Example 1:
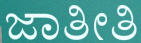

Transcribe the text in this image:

ಜಾತೀತಿ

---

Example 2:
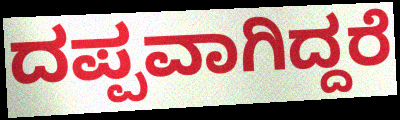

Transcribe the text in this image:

ದಪ್ಪವಾಗಿದ್ದರೆ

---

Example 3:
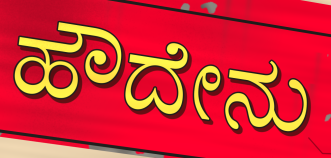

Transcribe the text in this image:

ಹೌದೇನು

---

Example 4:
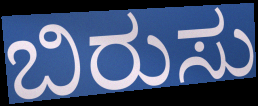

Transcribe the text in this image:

ಬಿರುಸು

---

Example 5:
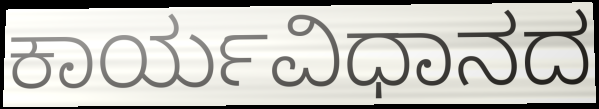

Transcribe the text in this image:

ಕಾರ್ಯವಿಧಾನದ